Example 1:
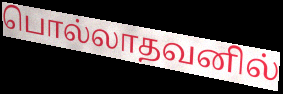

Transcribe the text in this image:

பொல்லாதவனில்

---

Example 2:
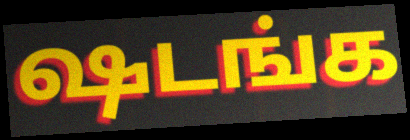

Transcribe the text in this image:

ஷடங்க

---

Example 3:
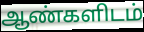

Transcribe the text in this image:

ஆண்களிடம்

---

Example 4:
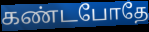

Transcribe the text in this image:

கண்டபோதே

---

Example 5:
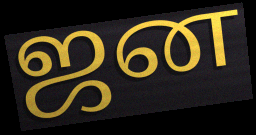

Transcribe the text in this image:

ஜன